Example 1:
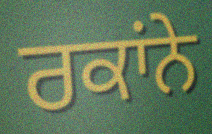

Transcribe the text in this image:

ਰਕਾਂਨੇ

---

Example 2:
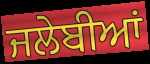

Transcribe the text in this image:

ਜਲੇਬੀਆਂ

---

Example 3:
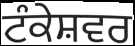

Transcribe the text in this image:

ਟੰਕੇਸ਼ਵਰ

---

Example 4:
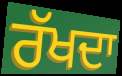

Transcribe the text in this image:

ਰੱਖਦਾ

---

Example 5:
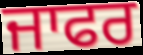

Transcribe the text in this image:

ਜਾਫਰ